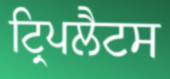
ਟ੍ਰਿਪਲੈਟਸ